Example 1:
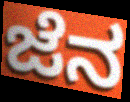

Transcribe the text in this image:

ಜೆನ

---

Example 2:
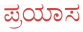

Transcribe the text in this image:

ಪ್ರಯಾಸ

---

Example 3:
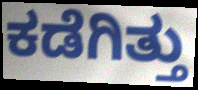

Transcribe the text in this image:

ಕಡೆಗಿತ್ತು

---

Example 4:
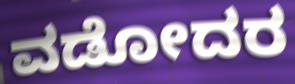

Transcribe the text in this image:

ವಡೋದರ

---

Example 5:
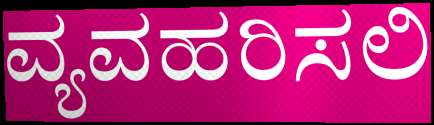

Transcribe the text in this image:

ವ್ಯವಹರಿಸಲಿ